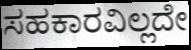
ಸಹಕಾರವಿಲ್ಲದೇ